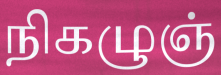
நிகழுஞ்